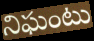
నిఘంటు